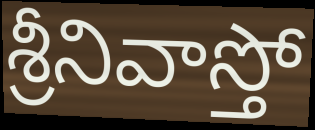
శ్రీనివాస్తో